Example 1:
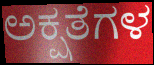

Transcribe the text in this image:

ಅಕ್ಷತೆಗಳ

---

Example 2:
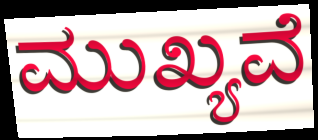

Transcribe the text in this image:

ಮುಖ್ಯವೆ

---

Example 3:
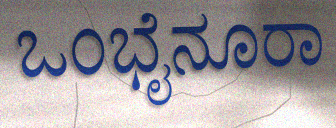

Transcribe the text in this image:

ಒಂಭೈನೂರಾ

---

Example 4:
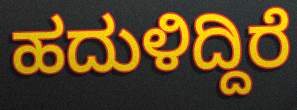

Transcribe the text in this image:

ಹದುಳಿದ್ದಿರೆ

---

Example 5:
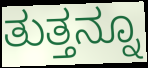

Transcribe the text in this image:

ತುತ್ತನ್ನೂ